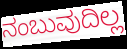
ನಂಬುವುದಿಲ್ಲ